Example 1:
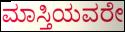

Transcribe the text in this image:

ಮಾಸ್ತಿಯವರೇ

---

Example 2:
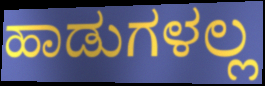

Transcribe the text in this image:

ಹಾಡುಗಳಲ್ಲ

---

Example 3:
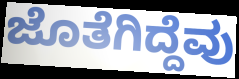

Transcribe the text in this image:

ಜೊತೆಗಿದ್ದೆವು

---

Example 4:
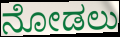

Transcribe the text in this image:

ನೋಡಲು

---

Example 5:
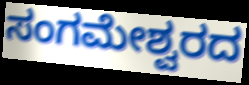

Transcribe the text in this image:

ಸಂಗಮೇಶ್ವರದ